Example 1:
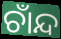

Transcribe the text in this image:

ଚାଁନ୍ଦ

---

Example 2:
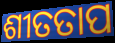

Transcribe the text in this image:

ଶୀତତାପ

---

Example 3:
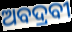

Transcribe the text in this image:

ଅବଦ୍ରବୀ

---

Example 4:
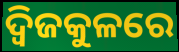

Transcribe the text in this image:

ଦ୍ୱିଜକୁଳରେ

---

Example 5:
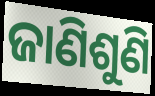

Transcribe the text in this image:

ଜାଣିଶୁଣି